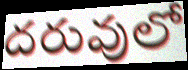
దరువులో